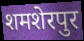
शमशेरपुर